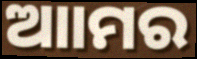
ଆାମର